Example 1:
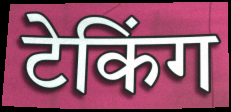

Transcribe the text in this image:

टेकिंग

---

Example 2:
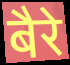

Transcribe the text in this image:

बैरे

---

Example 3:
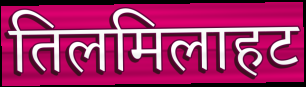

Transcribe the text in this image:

तिलमिलाहट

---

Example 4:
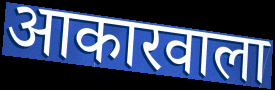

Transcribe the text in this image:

आकारवाला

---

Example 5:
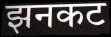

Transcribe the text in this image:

झनकट